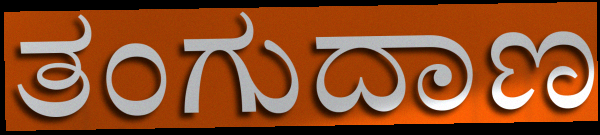
ತಂಗುದಾಣ